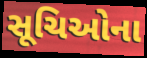
સૂચિઓના